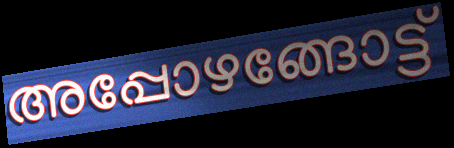
അപ്പോഴങ്ങോട്ട്